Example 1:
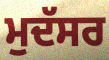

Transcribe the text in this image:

ਮੁਦੱਸਰ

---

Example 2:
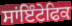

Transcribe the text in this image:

ਸਾਂਇੰਟੇਫਿਕ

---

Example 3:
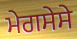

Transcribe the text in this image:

ਮੇਗਸੇਸੇ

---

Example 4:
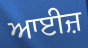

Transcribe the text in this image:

ਆਈਜ਼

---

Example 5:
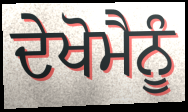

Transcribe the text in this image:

ਦੇਖੋਮੈਨੂੰ